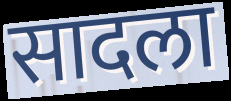
सादला